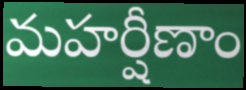
మహర్షీణాం